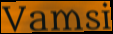
Vamsi